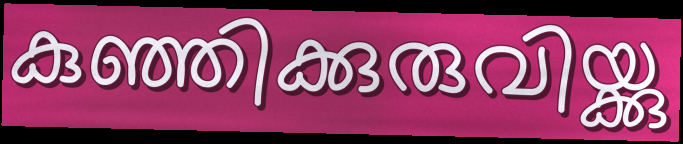
കുഞ്ഞിക്കുരുവിയ്ക്കു